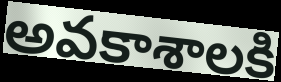
అవకాశాలకి